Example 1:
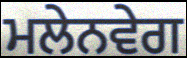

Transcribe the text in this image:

ਮਲੇਨਵੇਗ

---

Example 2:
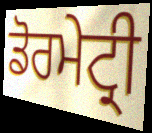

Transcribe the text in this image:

ਡੋਰਮੇਟ੍ਰੀ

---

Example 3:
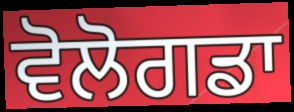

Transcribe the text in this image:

ਵੋਲੋਗਡਾ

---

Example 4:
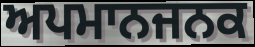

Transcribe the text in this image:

ਅਪਮਾਨਜਨਕ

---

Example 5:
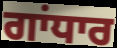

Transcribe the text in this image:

ਗਾਂਧਾਰ